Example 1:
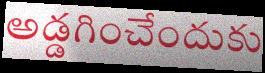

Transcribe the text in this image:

అడ్డగించేందుకు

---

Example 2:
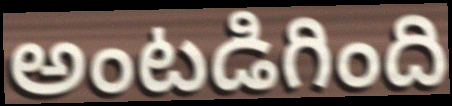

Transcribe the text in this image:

అంటడిగింది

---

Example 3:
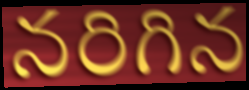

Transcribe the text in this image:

నరిగిన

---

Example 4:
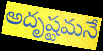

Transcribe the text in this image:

అదృష్టమనే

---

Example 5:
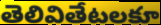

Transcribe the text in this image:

తెలివితేటలకూ